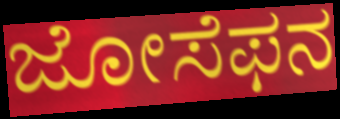
ಜೋಸೆಫನ